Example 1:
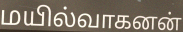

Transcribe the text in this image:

மயில்வாகனன்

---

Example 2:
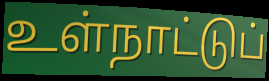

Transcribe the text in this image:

உள்நாட்டுப்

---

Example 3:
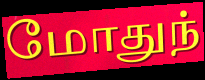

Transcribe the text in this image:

மோதுந்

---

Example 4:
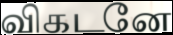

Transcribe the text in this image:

விகடனே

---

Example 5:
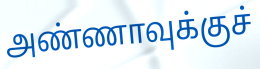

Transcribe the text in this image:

அண்ணாவுக்குச்